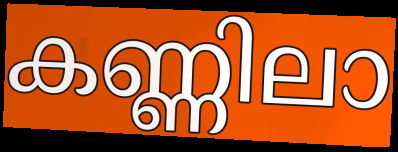
കണ്ണിലാ